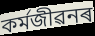
কৰ্মজীৱনৰ